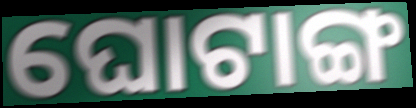
ଘୋଟାଙ୍ଗ